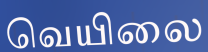
வெயிலை